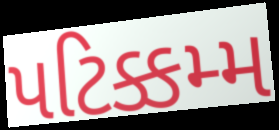
પટિક્કમ્મ